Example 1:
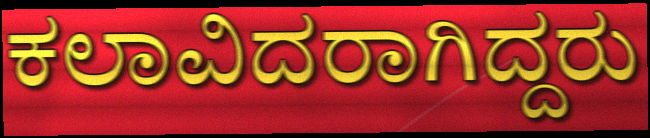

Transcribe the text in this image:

ಕಲಾವಿದರಾಗಿದ್ದರು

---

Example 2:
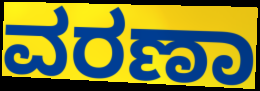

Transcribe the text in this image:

ವರಣಾ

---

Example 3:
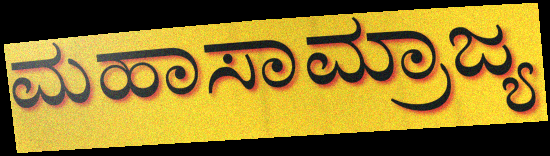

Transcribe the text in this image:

ಮಹಾಸಾಮ್ರಾಜ್ಯ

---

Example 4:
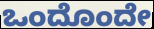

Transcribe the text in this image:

ಒಂದೊಂದೇ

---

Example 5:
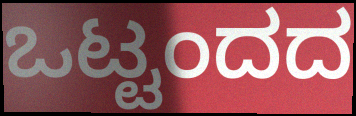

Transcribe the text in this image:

ಒಟ್ಟಂದದ